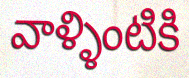
వాళ్ళింటికి